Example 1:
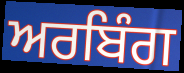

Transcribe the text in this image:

ਅਰਬਿੰਗ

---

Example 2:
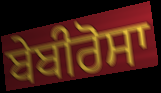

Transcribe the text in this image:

ਬੇਬੀਰੋਸਾ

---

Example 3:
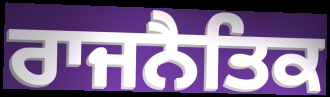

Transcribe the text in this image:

ਰਾਜਨੈਤਿਕ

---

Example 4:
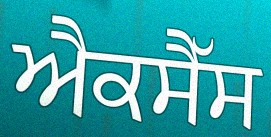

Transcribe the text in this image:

ਐਕਸੈੱਸ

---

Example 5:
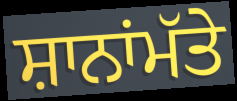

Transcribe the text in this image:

ਸ਼ਾਨਾਂਮੱਤੇ